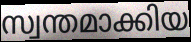
സ്വന്തമാക്കിയ